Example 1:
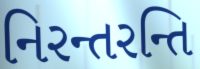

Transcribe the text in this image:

નિરન્તરન્તિ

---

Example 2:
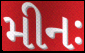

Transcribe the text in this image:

મીનઃ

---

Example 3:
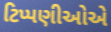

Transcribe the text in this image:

ટિપ્પણીઓએ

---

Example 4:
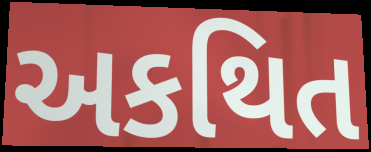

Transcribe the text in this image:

અકથિત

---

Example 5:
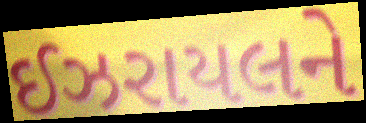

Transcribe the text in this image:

ઈઝરાયલને